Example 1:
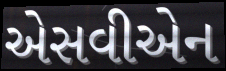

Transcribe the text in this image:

એસવીએન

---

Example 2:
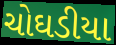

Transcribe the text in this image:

ચોઘડીયા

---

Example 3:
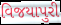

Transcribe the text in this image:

વિજયાપુરી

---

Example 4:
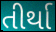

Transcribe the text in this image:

તીર્થા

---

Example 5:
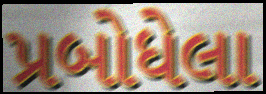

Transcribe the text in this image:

પ્રબોધેલા